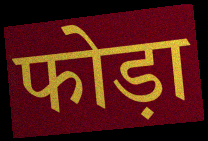
फोड़ा